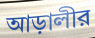
আড়ালীর